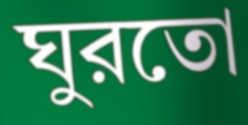
ঘুরতো